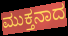
ಮುಕ್ತನಾದ